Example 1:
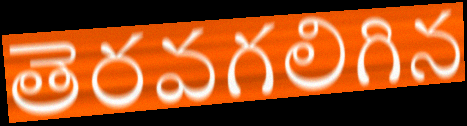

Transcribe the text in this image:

తెరవగలిగిన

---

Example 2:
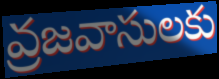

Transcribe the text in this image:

వ్రజవాసులకు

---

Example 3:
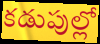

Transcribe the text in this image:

కడుపుల్లో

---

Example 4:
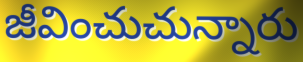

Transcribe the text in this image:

జీవించుచున్నారు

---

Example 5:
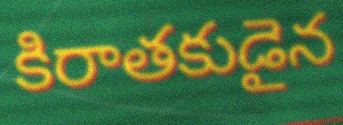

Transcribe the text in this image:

కిరాతకుడైన